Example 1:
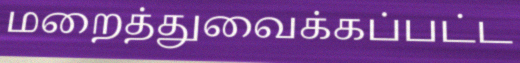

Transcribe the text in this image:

மறைத்துவைக்கப்பட்ட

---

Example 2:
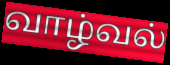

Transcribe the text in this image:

வாழ்வல்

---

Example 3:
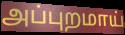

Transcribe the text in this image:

அப்புறமாய்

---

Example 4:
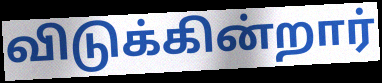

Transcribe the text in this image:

விடுக்கின்றார்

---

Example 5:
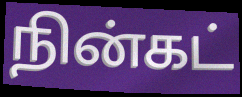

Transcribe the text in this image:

நின்கட்